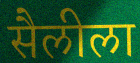
सैलीला